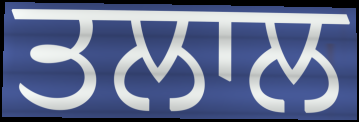
ਤਲਾਲ